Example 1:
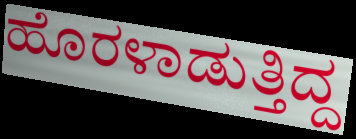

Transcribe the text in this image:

ಹೊರಳಾಡುತ್ತಿದ್ದ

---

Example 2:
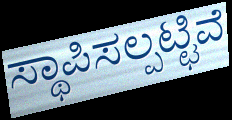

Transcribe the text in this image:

ಸ್ಥಾಪಿಸಲ್ಪಟ್ಟಿವೆ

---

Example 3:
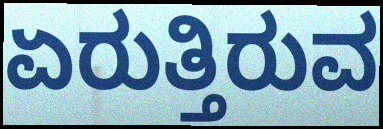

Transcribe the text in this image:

ಏರುತ್ತಿರುವ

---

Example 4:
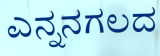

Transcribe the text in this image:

ಎನ್ನನಗಲದ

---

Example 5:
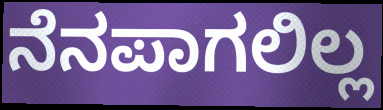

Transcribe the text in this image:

ನೆನಪಾಗಲಿಲ್ಲ